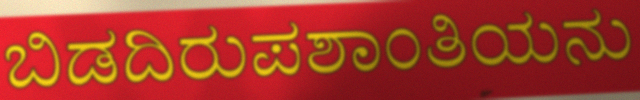
ಬಿಡದಿರುಪಶಾಂತಿಯನು